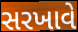
સરખાવે